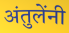
अंतुलेंनी